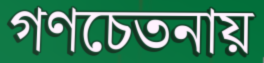
গণচেতনায়